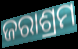
ଜରାଶ୍ରମ